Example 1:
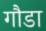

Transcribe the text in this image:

गौडा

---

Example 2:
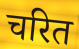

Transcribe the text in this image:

चरित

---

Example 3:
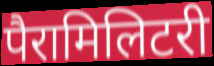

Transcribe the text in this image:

पैरामिलिटरी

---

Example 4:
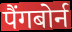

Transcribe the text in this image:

पैंगबोर्न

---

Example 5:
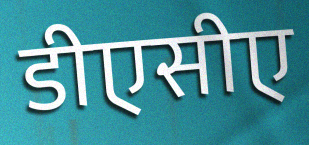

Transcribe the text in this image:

डीएसीए